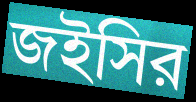
জইসির